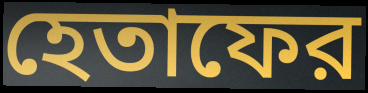
হেতাফের